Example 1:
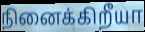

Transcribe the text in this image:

நினைக்கிறீயா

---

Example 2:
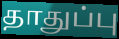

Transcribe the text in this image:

தாதுப்பு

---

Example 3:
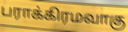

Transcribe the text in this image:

பராக்கிரமவாகு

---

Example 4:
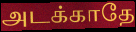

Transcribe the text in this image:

அடக்காதே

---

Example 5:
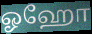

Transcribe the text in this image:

ஓஹோ